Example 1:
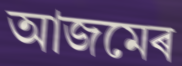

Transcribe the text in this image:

আজমেৰ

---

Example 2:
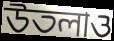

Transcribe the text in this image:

উতলাও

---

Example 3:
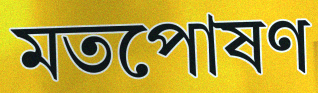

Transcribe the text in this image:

মতপোষণ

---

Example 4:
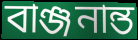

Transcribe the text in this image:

বাঞ্জনান্ত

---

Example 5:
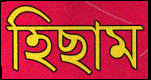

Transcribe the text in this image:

হিছাম